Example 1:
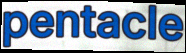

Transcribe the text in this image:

pentacle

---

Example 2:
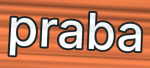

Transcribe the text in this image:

praba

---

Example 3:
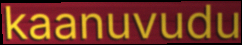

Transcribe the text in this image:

kaanuvudu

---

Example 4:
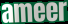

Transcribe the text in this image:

ameer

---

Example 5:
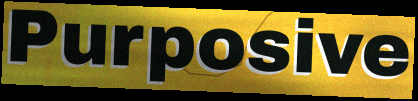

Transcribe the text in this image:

Purposive